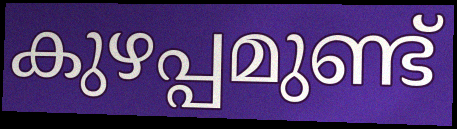
കുഴപ്പമുണ്ട്